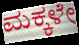
ಮಕ್ಕಳೇ